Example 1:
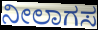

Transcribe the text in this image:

ನೀಲಾಗಸ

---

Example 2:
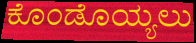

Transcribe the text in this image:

ಕೊಂಡೊಯ್ಯಲು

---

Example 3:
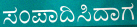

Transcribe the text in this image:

ಸಂಪಾದಿಸಿದಾಗ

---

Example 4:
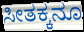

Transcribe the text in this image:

ಸೀತಕ್ಕನೂ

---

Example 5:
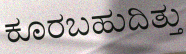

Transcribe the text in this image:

ಕೂರಬಹುದಿತ್ತು